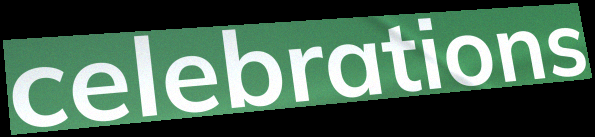
celebrations